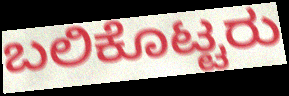
ಬಲಿಕೊಟ್ಟರು